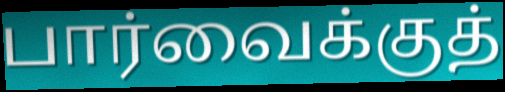
பார்வைக்குத்